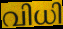
വിധി